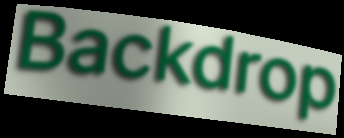
Backdrop